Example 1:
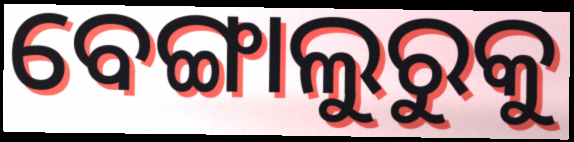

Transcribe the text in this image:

ବେଙ୍ଗାଲୁରୁକୁ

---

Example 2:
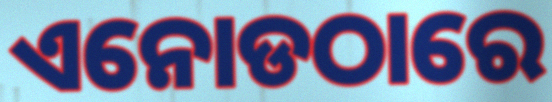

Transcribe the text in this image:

ଏନୋଡଠାରେ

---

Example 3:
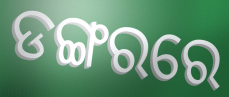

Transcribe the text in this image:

ଡଙ୍ଗରରେ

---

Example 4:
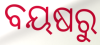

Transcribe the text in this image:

ବୟଷରୁ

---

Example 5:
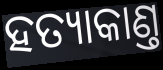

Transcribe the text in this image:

ହତ୍ୟାକାଣ୍ତ